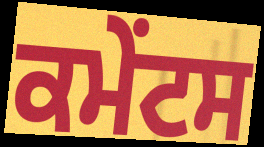
ਕਮੇੰਟਸ